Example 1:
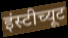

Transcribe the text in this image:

इंस्‍टीच्‍यूट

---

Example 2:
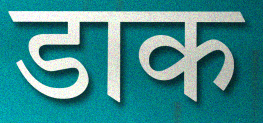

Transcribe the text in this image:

डाक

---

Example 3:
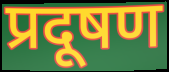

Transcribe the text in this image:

प्रदूषण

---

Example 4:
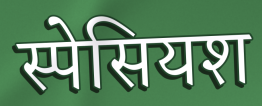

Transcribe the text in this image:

स्पेसियश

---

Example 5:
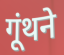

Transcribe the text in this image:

गूंथने